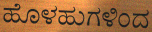
ಹೊಳಹುಗಳಿಂದ